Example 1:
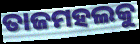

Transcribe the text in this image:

ତାଜମହଲକୁ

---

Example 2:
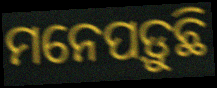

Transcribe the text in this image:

ମନେପଡ଼ୁଛି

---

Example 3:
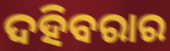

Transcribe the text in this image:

ଦହିବରାର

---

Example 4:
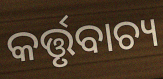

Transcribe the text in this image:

କର୍ତ୍ତୃବାଚ୍ୟ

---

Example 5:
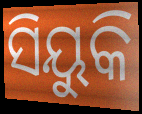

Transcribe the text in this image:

ସିୟୁକି